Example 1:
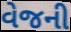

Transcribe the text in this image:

વેજની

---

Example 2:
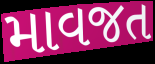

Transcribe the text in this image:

માવજત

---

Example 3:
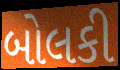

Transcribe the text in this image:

બોલકી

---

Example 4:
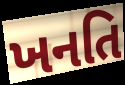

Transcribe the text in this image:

ખનતિ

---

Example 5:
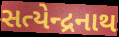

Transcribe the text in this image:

સત્યેન્દ્રનાથ